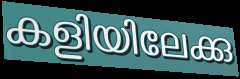
കളിയിലേക്കു